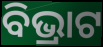
ବିଭ୍ରାଟ